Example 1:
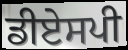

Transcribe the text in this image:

ਡੀਏਸਪੀ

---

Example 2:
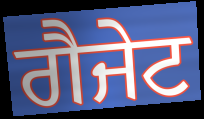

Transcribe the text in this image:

ਗੈਜੇਟ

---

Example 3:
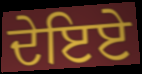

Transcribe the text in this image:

ਦੇਇਏ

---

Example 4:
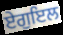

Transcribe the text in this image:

ਏਗੁਇਲ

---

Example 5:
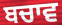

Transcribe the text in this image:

ਬਚਾਵ